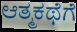
ಆತ್ಮಕಥೆಗೆ